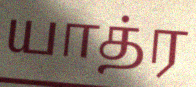
யாத்ர